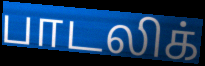
பாடலிக்